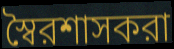
স্বৈরশাসকরা